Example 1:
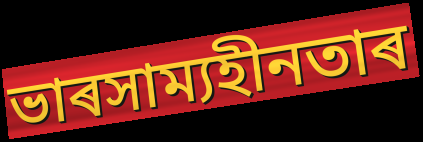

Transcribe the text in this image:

ভাৰসাম্যহীনতাৰ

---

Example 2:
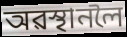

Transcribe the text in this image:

অৱস্থানলৈ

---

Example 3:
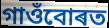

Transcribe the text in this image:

গাওঁবোৰত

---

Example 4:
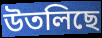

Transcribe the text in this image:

উতলিছে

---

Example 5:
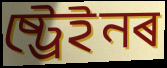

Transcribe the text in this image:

ষ্ট্ৰেইনৰ